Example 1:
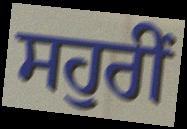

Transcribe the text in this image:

ਸਹੁਰੀਂ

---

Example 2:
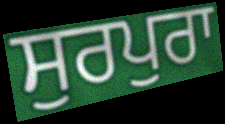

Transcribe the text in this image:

ਸੁਰਪੁਰਾ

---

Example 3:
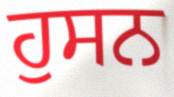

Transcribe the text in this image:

ਹੁਸਨ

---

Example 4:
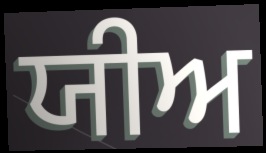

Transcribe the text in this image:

ਯੀਅ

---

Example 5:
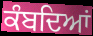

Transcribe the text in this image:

ਕੰਬਦਿਆਂ